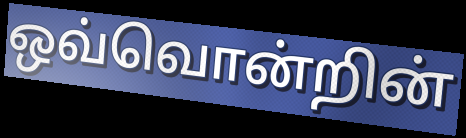
ஒவ்வொன்றின்